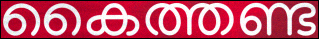
കൈത്തണ്ട